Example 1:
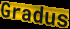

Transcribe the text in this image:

Gradus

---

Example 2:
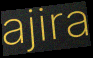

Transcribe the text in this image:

ajira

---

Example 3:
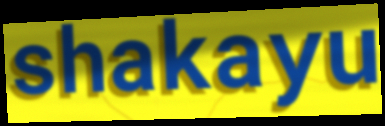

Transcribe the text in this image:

shakayu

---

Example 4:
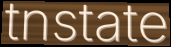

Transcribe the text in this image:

tnstate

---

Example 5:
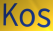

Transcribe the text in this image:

Kos